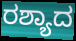
ರಶ್ಯಾದ